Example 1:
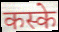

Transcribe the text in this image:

कस्के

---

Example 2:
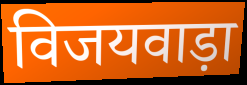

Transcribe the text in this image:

विजयवाड़ा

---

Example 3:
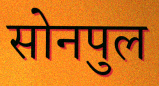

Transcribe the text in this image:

सोनपुल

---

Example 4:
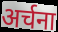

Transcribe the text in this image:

अर्चना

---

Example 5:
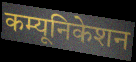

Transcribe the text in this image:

कम्यूनिकेशन